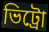
ভিট্রো